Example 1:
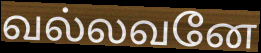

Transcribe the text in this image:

வல்லவனே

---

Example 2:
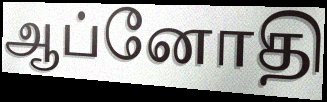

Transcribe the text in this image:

ஆப்னோதி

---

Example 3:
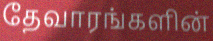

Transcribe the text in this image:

தேவாரங்களின்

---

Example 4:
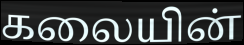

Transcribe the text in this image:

கலையின்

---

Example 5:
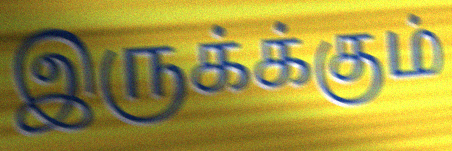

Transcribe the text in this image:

இருக்க்கும்